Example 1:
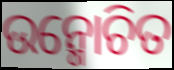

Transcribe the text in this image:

ଉନ୍ମୋଚିତ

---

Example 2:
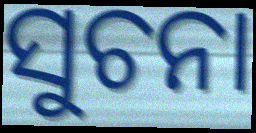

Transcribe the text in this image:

ସୁଚନା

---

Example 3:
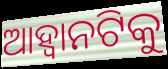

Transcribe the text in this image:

ଆହ୍ଵାନଟିକୁ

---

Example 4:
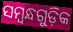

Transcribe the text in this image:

ସମ୍ବନ୍ଧଗୁଡ଼ିକ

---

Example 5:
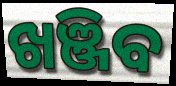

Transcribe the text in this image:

ଖଞ୍ଜିବ